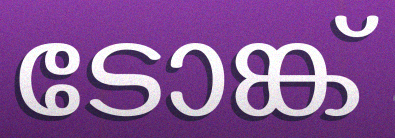
ടോങ്ക്